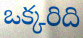
ఒక్కరిది